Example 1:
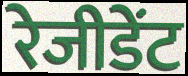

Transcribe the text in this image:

रेजीडेंट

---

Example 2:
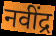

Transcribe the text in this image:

नवींद्र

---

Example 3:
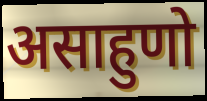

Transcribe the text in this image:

असाहुणो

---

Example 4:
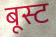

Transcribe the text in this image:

बूस्ट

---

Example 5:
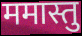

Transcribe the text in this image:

ममास्तु